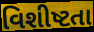
વિશીષ્ટતા